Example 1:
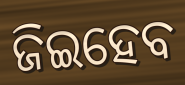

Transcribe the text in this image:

ଜିଇହେବ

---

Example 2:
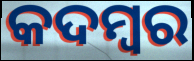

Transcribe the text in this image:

କଦମ୍ବର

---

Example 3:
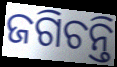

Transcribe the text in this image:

ଜଗିଚନ୍ତି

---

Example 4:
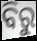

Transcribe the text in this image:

ବିରୁ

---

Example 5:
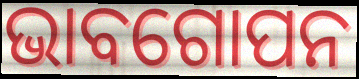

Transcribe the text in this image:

ଭାବଗୋପନ